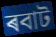
ৰবাট